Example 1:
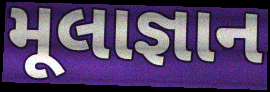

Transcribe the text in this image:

મૂલાજ્ઞાન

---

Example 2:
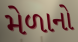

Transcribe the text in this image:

મેળાનો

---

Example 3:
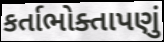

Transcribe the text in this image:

કર્તાભોક્તાપણું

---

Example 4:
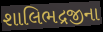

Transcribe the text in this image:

શાલિભદ્રજીના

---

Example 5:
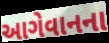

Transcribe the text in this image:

આગેવાનના